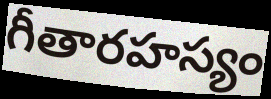
గీతారహస్యం